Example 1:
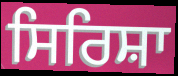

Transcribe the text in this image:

ਸਿਰਿਸ਼ਾ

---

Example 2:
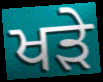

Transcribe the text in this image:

ਖਡ਼ੇ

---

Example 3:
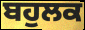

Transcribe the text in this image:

ਬਹੁਲਕ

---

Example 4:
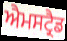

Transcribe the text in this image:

ਐਮਸਟ੍ਰੈਡ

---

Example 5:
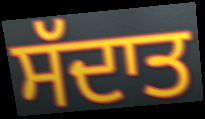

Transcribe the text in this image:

ਸੱਦਾਤ